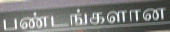
பண்டங்களான